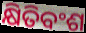
କ୍ଷିତିବଂଶ